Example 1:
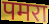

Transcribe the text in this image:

पमरा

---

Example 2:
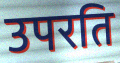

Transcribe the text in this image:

उपरति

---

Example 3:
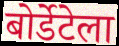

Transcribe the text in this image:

बोर्डेटेला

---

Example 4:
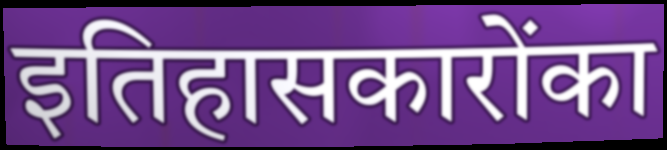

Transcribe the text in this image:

इतिहासकारोंका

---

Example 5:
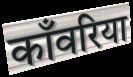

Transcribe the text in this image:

काँवरिया